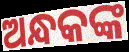
ଅନ୍ଧକଙ୍କ